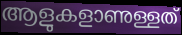
ആളുകളാണുള്ളത്